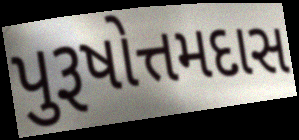
પુરૂષોત્તમદાસ